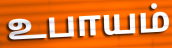
உபாயம்